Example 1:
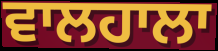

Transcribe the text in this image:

ਵਾਲਹਾਲਾ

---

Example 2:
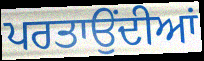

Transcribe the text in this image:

ਪਰਤਾਉਂਦੀਆਂ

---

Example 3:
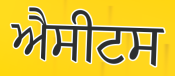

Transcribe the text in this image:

ਐਸੀਟਸ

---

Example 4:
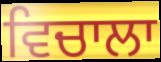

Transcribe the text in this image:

ਵਿਚਾਲਾ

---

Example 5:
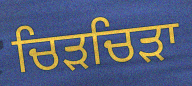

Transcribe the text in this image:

ਚਿੜਚਿੜਾ